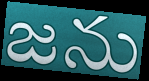
జను